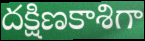
దక్షిణకాశిగా